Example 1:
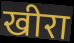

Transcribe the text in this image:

खीरा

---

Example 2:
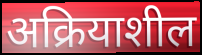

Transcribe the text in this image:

अक्रियाशील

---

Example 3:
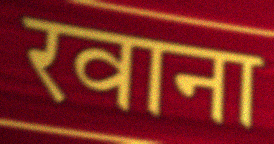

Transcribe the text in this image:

रवाना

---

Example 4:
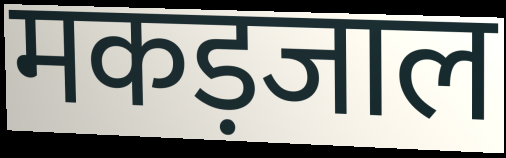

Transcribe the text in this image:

मकड़जाल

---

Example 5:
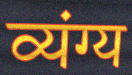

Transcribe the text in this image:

व्यंग्य